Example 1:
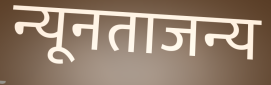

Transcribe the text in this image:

न्यूनताजन्य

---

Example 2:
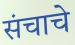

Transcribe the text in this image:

संचाचे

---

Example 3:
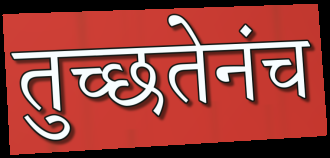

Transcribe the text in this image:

तुच्छतेनंच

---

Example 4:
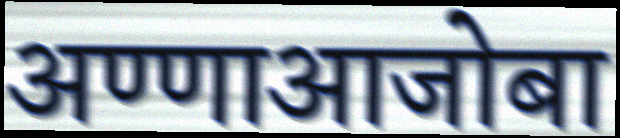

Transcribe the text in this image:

अण्णाआजोबा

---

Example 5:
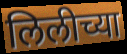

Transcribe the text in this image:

लिलीच्या